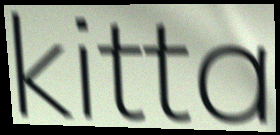
kitta